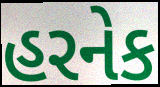
હરનેક